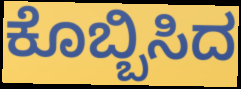
ಕೊಬ್ಬಿಸಿದ